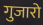
गुजारो